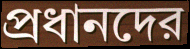
প্রধানদের